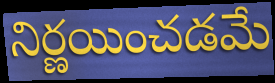
నిర్ణయించడమే